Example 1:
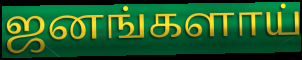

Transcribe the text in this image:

ஜனங்களாய்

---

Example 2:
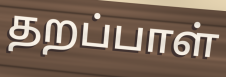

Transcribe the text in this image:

தறப்பாள்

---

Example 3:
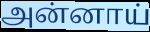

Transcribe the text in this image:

அன்னாய்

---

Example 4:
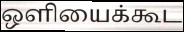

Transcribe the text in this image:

ஒளியைக்கூட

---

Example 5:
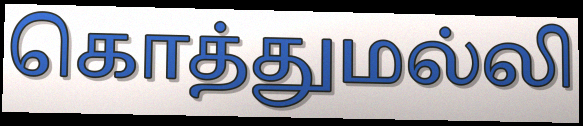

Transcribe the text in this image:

கொத்துமல்லி